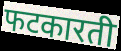
फटकारती